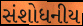
સંશોધનીય